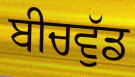
ਬੀਚਵੁੱਡ